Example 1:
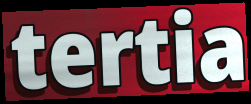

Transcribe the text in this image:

tertia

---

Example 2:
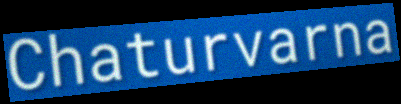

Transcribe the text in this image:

Chaturvarna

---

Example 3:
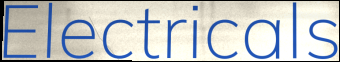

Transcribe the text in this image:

Electricals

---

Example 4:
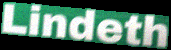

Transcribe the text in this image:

Lindeth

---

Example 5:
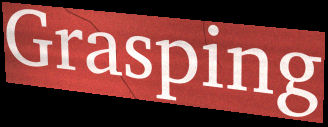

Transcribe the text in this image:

Grasping